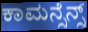
ಕಾಮನ್ಸೆನ್ಸ್